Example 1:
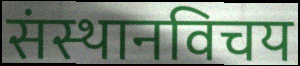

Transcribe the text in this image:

संस्थानविचय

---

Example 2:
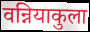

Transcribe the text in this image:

वन्नियाकुला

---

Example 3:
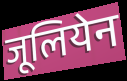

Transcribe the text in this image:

जूलियेन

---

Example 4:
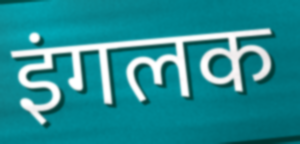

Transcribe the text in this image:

इंगलक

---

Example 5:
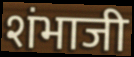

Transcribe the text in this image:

शंभाजी